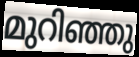
മുറിഞ്ഞു